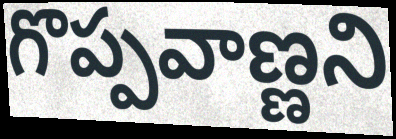
గొప్పవాణ్ణని